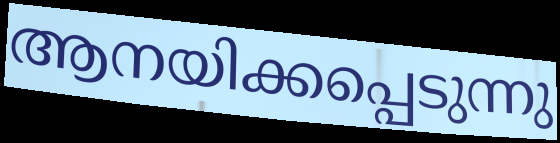
ആനയിക്കപ്പെടുന്നു